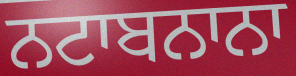
ਨਟਾਬਨਾਨਾ